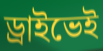
ড্রাইভেই